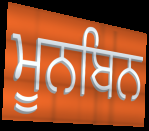
ਮੂਨਬਿਨ